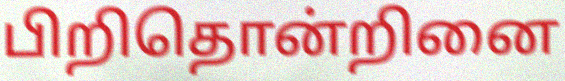
பிறிதொன்றினை